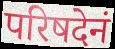
परिषदेनं